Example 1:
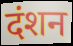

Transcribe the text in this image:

दंशन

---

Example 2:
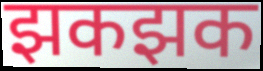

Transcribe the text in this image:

झकझक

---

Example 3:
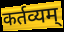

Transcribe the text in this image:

कर्तव्यम्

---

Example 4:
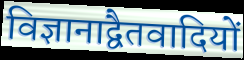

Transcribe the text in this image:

विज्ञानाद्वैतवादियों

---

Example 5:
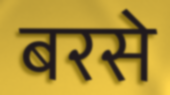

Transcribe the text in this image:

बरसे